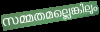
സമ്മതമല്ലെങ്കിലും